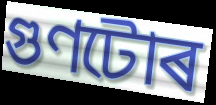
গুণটোৰ